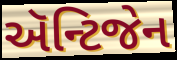
ઍન્ટિજેન